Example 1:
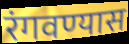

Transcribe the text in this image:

रंगवण्यास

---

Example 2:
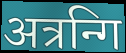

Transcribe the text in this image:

अत्रन्गि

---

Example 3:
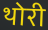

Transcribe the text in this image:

थोरी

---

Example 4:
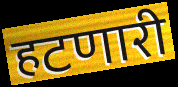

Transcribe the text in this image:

हटणारी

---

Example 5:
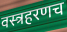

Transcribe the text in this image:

वस्त्रहरणच